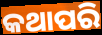
କଥାପରି